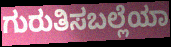
ಗುರುತಿಸಬಲ್ಲೆಯಾ